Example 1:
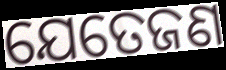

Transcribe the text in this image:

ଯେତେଜଣ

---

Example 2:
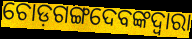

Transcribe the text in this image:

ଚୋଡ଼ଗଙ୍ଗଦେବଙ୍କଦ୍ୱାରା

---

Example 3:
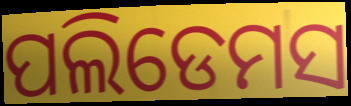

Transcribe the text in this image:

ପଲିଡେମସ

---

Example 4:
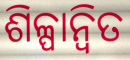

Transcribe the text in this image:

ଶିଳ୍ପାନ୍ବିତ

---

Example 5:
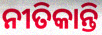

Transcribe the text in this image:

ନୀତିକାନ୍ତି